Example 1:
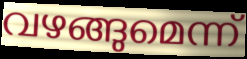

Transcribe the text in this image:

വഴങ്ങുമെന്ന്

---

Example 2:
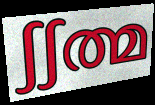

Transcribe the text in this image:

ഽഽത്മ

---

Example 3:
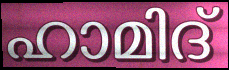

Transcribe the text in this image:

ഹാമിദ്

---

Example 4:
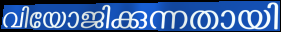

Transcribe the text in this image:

വിയോജിക്കുന്നതായി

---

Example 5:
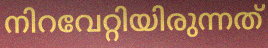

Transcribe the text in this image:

നിറവേറ്റിയിരുന്നത്